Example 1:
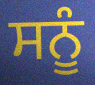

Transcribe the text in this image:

ਸਨੂੰ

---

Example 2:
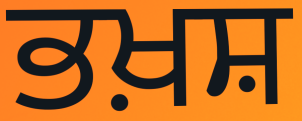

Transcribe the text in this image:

ਭਖ਼ਸ਼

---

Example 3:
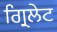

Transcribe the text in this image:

ਗ੍ਰਿਲੇਟ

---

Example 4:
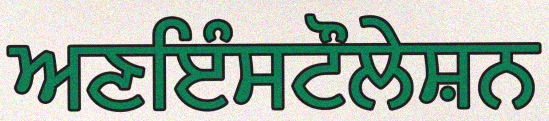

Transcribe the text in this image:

ਅਣਇੰਸਟੌਲੇਸ਼ਨ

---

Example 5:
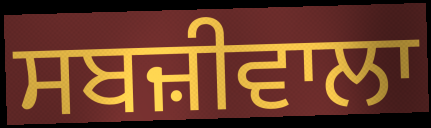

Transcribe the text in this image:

ਸਬਜ਼ੀਵਾਲਾ